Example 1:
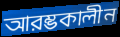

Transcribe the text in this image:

আরম্ভকালীন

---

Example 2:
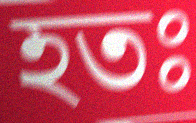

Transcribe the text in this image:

হতঃ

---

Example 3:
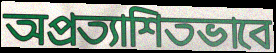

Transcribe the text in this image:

অপ্রত্যাশিতভাবে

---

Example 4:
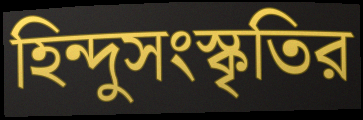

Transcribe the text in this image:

হিন্দুসংস্কৃতির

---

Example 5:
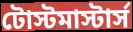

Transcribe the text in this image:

টোস্টমাস্টার্স